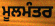
ਮੂਲਮੰਤਰ